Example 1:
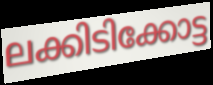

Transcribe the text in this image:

ലക്കിടിക്കോട്ട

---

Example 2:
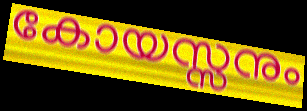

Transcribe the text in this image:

കോയസ്സനും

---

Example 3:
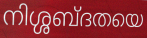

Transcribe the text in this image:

നിശ്ശബ്ദതയെ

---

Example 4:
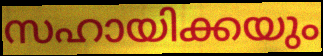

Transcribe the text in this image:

സഹായിക്കയും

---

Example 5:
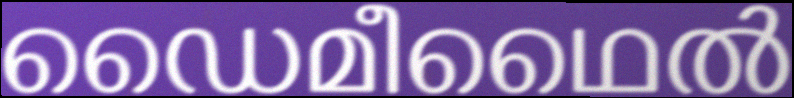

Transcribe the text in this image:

ഡൈമീഥൈൽ